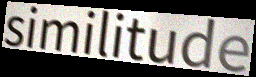
similitude